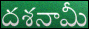
దశనామీ